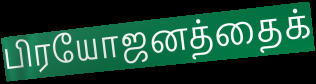
பிரயோஜனத்தைக்